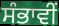
ਸੰਭਾਵੀਂ